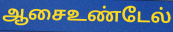
ஆசைஉண்டேல்